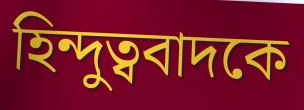
হিন্দুত্ববাদকে